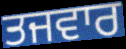
ਤਜਵਾਰ